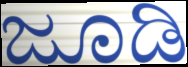
ಜೂಡಿ